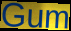
Gum